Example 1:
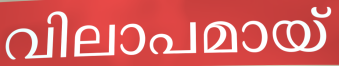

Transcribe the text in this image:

വിലാപമായ്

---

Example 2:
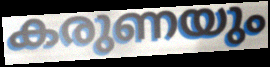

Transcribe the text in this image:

കരുണയും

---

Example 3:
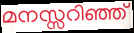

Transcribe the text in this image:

മനസ്സറിഞ്ഞ്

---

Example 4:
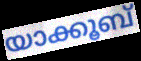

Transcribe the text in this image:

യാക്കൂബ്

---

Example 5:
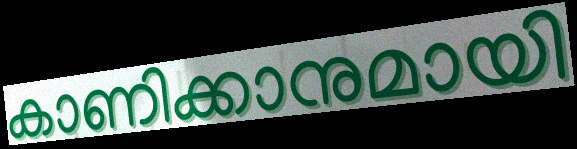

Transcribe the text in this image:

കാണിക്കാനുമായി